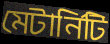
মেটার্নিটি